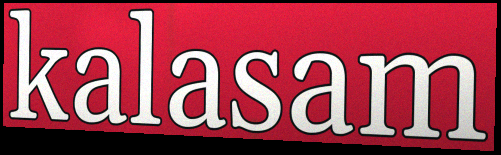
kalasam